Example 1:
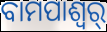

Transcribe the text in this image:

ବାମପାଶ୍ୱର୍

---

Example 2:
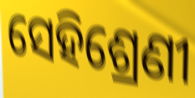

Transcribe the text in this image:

ସେହିଶ୍ରେଣୀ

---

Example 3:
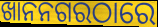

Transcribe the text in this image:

ଖାନନଗରଠାରେ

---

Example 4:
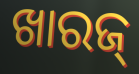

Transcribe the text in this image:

ଖାରଜ୍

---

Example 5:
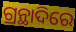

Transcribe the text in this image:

ଗ୍ରନ୍ଥାଦିରେ